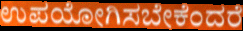
ಉಪಯೋಗಿಸಬೇಕೆಂದರೆ